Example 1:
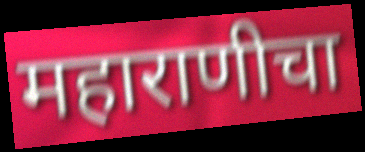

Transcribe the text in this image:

महाराणीचा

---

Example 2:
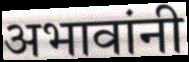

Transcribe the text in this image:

अभावांनी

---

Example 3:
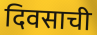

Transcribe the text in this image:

दिवसाची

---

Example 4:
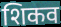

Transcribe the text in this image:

शिकव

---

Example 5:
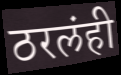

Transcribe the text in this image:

ठरलंही